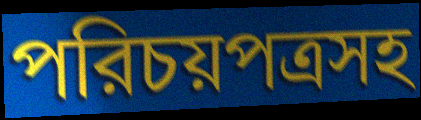
পরিচয়পত্রসহ